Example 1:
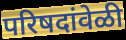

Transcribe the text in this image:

परिषदांवेळी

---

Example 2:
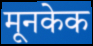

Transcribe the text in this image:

मूनकेक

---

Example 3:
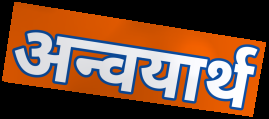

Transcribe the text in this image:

अन्वयार्थ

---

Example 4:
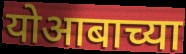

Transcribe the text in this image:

योआबाच्या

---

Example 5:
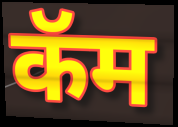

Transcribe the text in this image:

कॅम